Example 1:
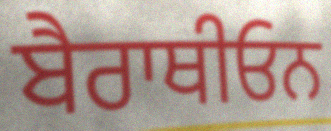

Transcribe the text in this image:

ਬੈਰਾਥੀਓਨ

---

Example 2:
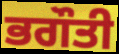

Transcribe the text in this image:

ਭਗੌਤੀ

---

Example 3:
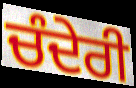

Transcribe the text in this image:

ਚੰਦੇਰੀ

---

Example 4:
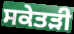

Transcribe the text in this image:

ਸਕੇਤੜੀ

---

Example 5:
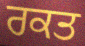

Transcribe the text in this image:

ਰਕਤ